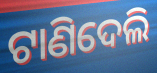
ଟାଣିଦେଲି